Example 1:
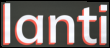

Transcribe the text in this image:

lanti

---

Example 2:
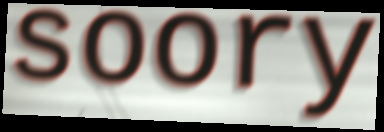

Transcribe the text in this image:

soory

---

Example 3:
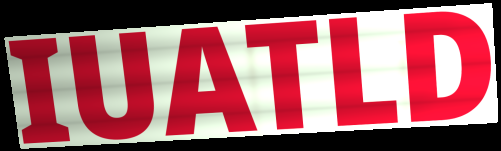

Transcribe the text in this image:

IUATLD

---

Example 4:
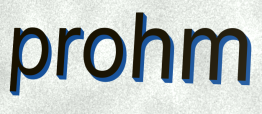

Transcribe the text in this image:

prohm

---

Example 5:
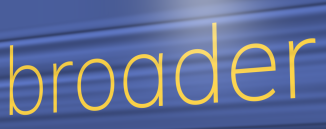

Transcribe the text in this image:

broader